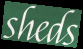
sheds